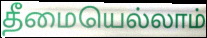
தீமையெல்லாம்